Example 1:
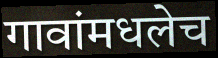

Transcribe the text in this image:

गावांमधलेच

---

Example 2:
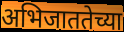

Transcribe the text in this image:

अभिजाततेच्या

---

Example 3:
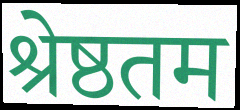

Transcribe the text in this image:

श्रेष्ठतम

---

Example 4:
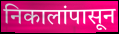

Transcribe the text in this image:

निकालांपासून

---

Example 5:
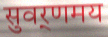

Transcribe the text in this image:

सुवर्णमय